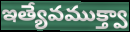
ఇత్యేవముక్త్వా